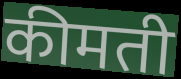
कीमती